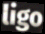
ligo